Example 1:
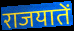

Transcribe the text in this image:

राजयातें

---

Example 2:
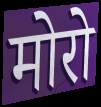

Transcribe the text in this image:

मोरो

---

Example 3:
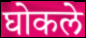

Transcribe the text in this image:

घोकले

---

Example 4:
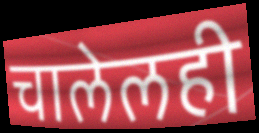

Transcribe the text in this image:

चालेलही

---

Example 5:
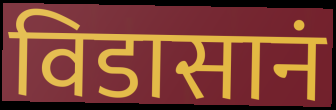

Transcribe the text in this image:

विडासानं